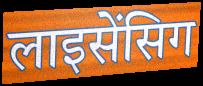
लाइसेंसिग